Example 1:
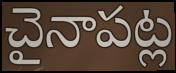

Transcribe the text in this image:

చైనాపట్ల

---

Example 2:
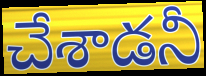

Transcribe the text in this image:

చేశాడనీ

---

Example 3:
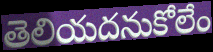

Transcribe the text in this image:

తెలియదనుకోలేం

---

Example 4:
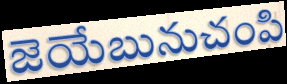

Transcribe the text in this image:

జెయేబునుచంపి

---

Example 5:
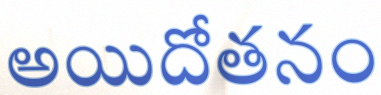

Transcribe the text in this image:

అయిదోతనం